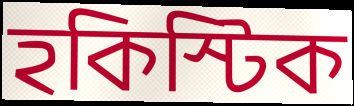
হকিস্টিক